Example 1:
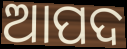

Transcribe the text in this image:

ଆପଦ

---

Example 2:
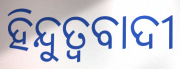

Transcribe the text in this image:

ହିନ୍ଦୁତ୍ବବାଦୀ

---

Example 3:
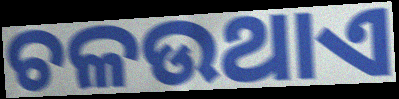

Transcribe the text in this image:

ଚଳଉଥାଏ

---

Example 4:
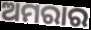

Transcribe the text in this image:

ଅମରାର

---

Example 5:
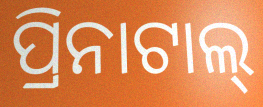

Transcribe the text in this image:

ପ୍ରିନାଟାଲ୍